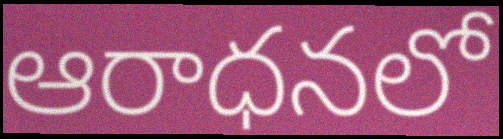
ఆరాధనలో